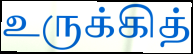
உருக்கித்